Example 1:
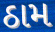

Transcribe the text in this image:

ઠામ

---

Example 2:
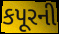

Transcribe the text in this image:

કપૂરની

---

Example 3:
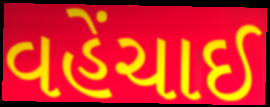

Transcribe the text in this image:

વહેંચાઈ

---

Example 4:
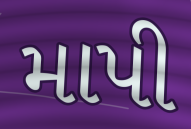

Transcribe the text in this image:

માપી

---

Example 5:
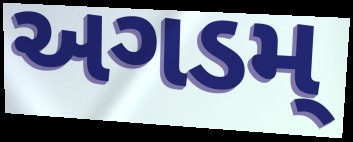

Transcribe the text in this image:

અગડમ્